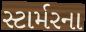
સ્ટાર્મરના